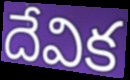
దేవిక